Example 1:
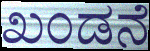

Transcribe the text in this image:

ಖಂಡನೆ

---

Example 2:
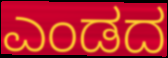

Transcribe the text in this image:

ಎಂಡದ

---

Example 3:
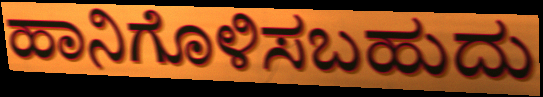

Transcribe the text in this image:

ಹಾನಿಗೊಳಿಸಬಹುದು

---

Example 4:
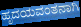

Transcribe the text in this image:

ಹೃದಯವಂತನಾಗಿ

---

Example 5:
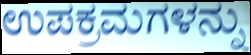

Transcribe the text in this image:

ಉಪಕ್ರಮಗಳನ್ನು